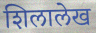
शिलालेख